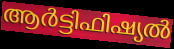
ആർട്ടിഫിഷ്യൽ